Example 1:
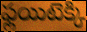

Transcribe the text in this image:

ఫ్లయిటెక్కి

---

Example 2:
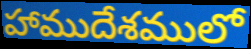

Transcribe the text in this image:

హాముదేశములో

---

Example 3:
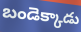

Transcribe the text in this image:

బండెక్కాడు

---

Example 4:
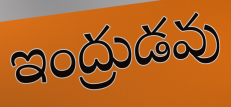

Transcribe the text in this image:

ఇంద్రుడవు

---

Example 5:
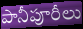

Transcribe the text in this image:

పానీపూరీలు